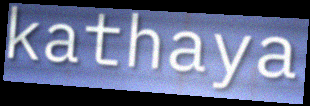
kathaya